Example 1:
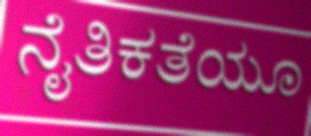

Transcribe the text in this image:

ನೈತಿಕತೆಯೂ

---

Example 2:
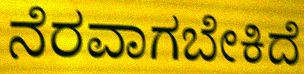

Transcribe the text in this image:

ನೆರವಾಗಬೇಕಿದೆ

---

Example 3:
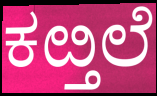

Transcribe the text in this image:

ಕೞ್ತಲೆ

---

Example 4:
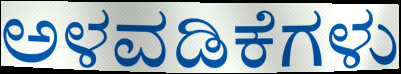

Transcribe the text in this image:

ಅಳವಡಿಕೆಗಳು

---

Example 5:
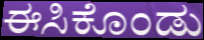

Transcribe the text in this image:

ಈಸಿಕೊಂಡು